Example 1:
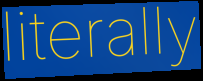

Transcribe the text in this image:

literally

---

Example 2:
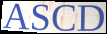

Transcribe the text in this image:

ASCD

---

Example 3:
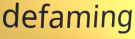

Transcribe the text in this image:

defaming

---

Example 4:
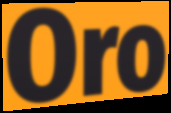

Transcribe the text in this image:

Oro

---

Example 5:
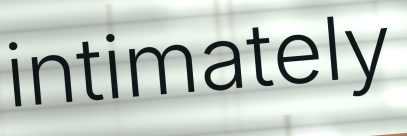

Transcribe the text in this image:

intimately